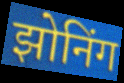
झोनिंग